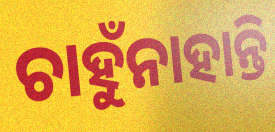
ଚାହୁଁନାହାନ୍ତି